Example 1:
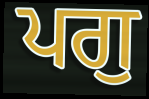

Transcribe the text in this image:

ਪਗੁ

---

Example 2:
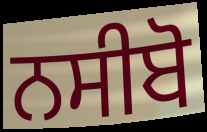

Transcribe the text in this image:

ਨਸੀਬੋ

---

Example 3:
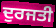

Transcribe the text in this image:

ਦੁਰਜਤੀ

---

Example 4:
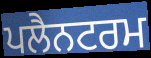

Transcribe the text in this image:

ਪਲੈਨਟਰਮ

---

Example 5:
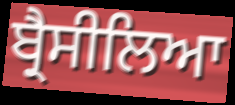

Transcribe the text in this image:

ਬ੍ਰੈਸੀਲਿਆ